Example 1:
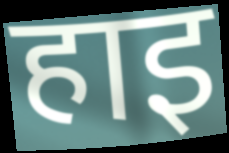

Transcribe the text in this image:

हाइ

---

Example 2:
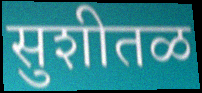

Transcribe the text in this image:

सुशीतळ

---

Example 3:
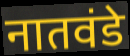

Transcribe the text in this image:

नातवंडे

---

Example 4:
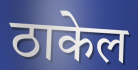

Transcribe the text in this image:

ठाकेल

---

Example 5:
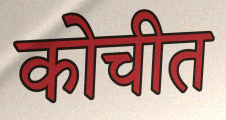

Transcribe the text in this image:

कोचीत